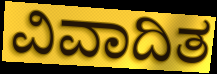
ವಿವಾದಿತ